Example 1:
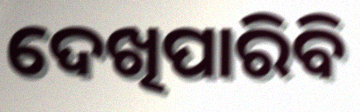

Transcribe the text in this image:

ଦେଖିପାରିବି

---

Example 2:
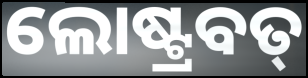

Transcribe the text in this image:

ଲୋଷ୍ଟ୍ରବତ୍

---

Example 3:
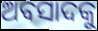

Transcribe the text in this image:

ଅବସାଦକୁ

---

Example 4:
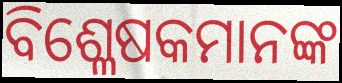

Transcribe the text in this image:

ବିଶ୍ଳେଷକମାନଙ୍କ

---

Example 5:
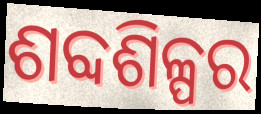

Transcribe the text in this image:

ଶବ୍ଦଶିଳ୍ପର